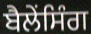
ਬੈਲੇਂਸਿੰਗ